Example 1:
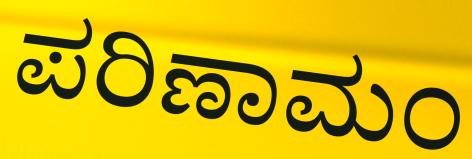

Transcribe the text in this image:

ಪರಿಣಾಮಂ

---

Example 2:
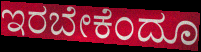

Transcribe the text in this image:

ಇರಬೇಕೆಂದೂ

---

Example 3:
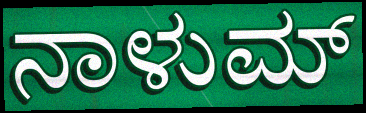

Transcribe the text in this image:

ನಾಳುಮ್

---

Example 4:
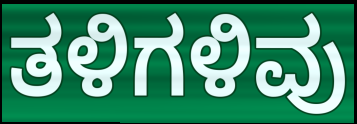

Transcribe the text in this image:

ತಳಿಗಳಿವು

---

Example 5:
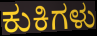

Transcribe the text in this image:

ಕುಕಿಗಳು